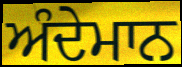
ਅੰਦੇਮਾਨ